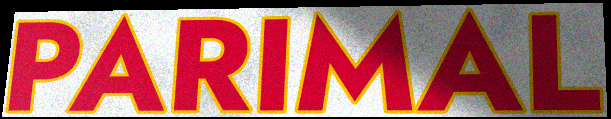
PARIMAL